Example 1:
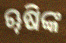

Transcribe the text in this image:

ୠଷିଙ୍କ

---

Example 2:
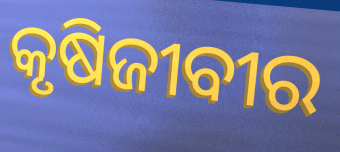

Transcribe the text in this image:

କୃଷିଜୀବୀର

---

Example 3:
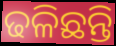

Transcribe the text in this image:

ଢଳିଛନ୍ତି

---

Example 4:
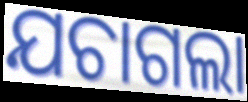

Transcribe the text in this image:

ଯଚାଗଲା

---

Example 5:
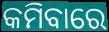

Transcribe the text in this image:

କମିବାରେ